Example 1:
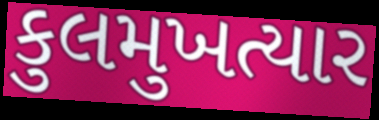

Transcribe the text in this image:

કુલમુખત્યાર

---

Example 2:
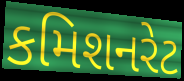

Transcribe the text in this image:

કમિશનરેટ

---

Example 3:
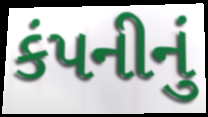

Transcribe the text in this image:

કંપનીનું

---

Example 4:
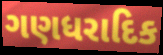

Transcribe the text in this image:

ગણધરાદિક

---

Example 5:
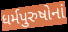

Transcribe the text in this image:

ધર્મપુરુષોનાં